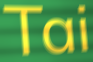
Tai